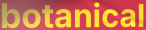
botanical